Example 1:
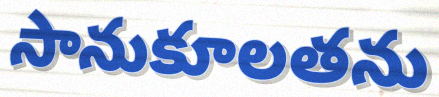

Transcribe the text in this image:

సానుకూలతను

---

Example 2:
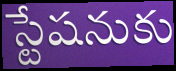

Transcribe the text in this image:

స్టేషనుకు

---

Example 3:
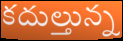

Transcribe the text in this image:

కదుల్తున్న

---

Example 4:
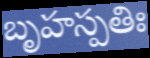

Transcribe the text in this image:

బృహస్పతిః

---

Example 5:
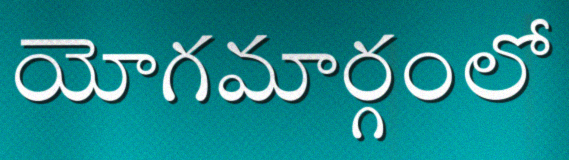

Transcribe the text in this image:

యోగమార్గంలో